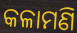
କଳାମଣି